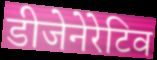
डीजेनेरेटिव